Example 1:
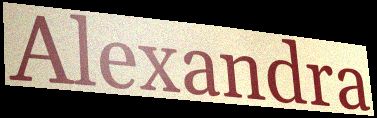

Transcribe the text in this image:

Alexandra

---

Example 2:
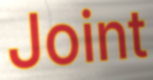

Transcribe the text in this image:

Joint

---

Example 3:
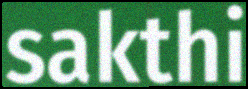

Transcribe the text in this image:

sakthi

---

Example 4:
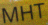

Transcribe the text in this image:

MHT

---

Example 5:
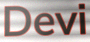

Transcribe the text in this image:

Devi